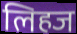
लिहज